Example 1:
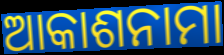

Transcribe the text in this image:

ଆକାଶନାମା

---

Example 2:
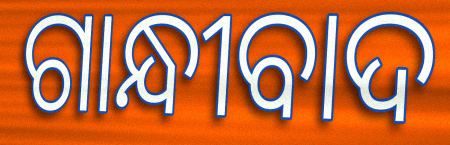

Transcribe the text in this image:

ଗାନ୍ଧୀବାଦ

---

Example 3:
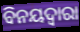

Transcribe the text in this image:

ବିନୟଦ୍ବାରା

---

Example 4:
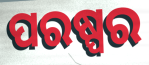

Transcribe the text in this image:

ପରଷ୍ପର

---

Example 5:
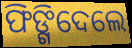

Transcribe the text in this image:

ଫିଙ୍ଗିଦେଲେ